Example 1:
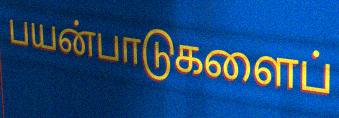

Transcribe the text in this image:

பயன்பாடுகளைப்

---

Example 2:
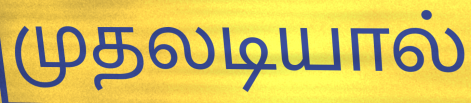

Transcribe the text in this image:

முதலடியால்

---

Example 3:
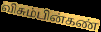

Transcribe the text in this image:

விசும்பின்கண்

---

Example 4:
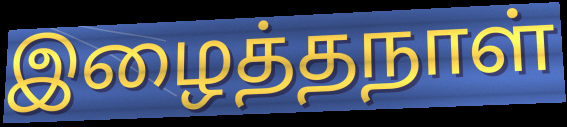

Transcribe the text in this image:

இழைத்தநாள்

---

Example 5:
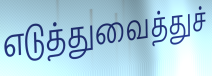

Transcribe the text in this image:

எடுத்துவைத்துச்